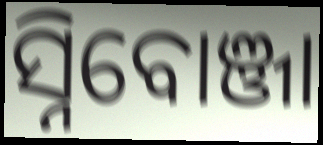
ସ୍ନିବୋଞ୍ଜା